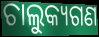
ଚାଲୁକ୍ୟଗଣ